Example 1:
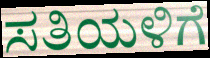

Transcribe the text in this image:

ಸತಿಯಳಿಗೆ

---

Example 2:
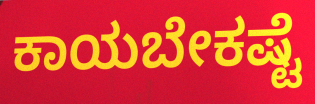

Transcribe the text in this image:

ಕಾಯಬೇಕಷ್ಟೆ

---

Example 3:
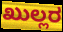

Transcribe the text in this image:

ಖುಲ್ಲರ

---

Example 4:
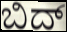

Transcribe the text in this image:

ಬಿದ್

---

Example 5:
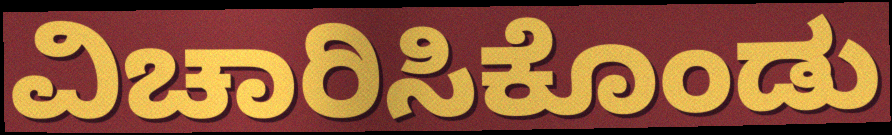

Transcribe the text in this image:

ವಿಚಾರಿಸಿಕೊಂಡು